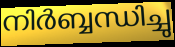
നിർബ്ബന്ധിച്ചു